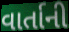
વાર્તાની